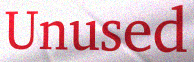
Unused